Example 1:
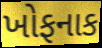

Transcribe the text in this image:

ખોફનાક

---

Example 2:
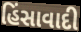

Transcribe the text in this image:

હિંસાવાદી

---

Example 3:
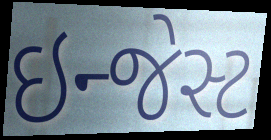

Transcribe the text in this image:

ઇન્જેસ્ટ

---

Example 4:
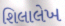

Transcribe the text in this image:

શિલાલેખ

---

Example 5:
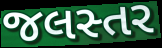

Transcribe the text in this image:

જલસ્તર